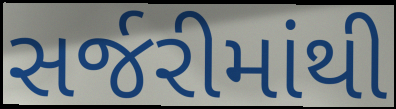
સર્જરીમાંથી